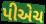
પીએચ